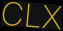
CLX